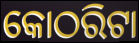
କୋଠରିଟା